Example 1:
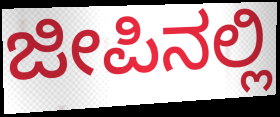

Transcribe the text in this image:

ಜೀಪಿನಲ್ಲಿ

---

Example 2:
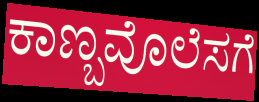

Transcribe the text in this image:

ಕಾಣ್ಬವೊಲೆಸಗೆ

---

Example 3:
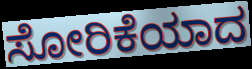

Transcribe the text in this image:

ಸೋರಿಕೆಯಾದ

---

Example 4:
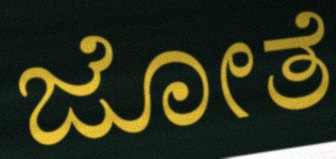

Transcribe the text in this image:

ಜೋತೆ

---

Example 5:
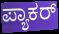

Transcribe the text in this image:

ಪ್ಯಾಕರ್